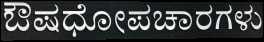
ಔಷಧೋಪಚಾರಗಳು